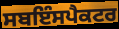
ਸਬਇੰਸਪੈਕਟਰ